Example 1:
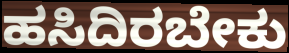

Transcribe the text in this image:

ಹಸಿದಿರಬೇಕು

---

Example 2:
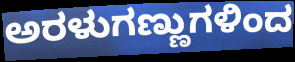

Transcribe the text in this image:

ಅರಳುಗಣ್ಣುಗಳಿಂದ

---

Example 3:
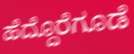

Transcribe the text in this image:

ಹೆದ್ದೊರೆಗೂಡೆ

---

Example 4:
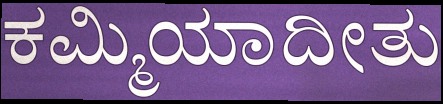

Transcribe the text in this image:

ಕಮ್ಮಿಯಾದೀತು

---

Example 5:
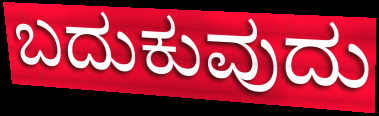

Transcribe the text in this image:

ಬದುಕುವುದು